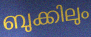
ബുക്കിലും